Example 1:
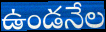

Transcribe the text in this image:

ఉండనేల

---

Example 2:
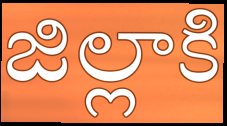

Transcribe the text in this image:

జిల్లాకి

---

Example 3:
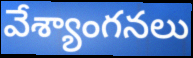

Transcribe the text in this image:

వేశ్యాంగనలు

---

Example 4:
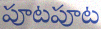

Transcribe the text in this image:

పూటపూట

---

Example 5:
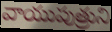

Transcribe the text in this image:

వాయుపుత్రుని